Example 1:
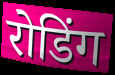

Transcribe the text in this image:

रोडिंग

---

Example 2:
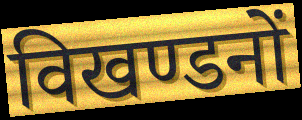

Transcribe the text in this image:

विखण्डनों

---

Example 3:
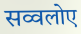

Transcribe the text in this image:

सव्वलोए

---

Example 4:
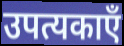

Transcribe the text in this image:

उपत्यकाएँ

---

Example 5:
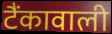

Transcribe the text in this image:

टैंकावाली